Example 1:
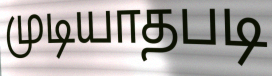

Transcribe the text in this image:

முடியாதபடி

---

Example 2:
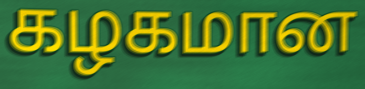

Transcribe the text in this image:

கழகமான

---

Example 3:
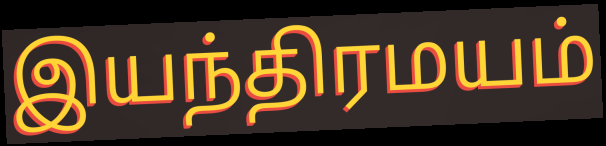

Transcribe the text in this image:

இயந்திரமயம்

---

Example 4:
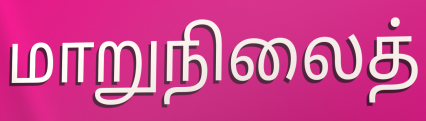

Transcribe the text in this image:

மாறுநிலைத்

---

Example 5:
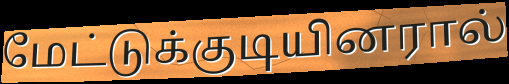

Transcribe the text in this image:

மேட்டுக்குடியினரால்